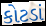
કોટડાં